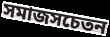
সমাজসচেতন